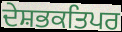
ਦੇਸ਼ਭਕਤਿਪਰ